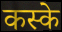
कस्के